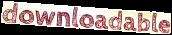
downloadable